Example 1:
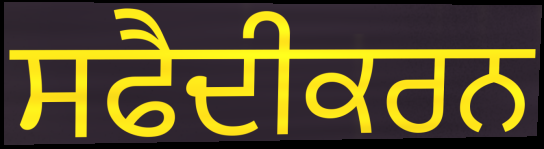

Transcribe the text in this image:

ਸਫੈਦੀਕਰਨ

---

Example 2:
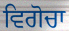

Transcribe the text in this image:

ਵਿਗੋਚਾ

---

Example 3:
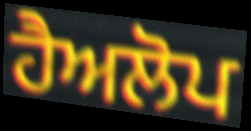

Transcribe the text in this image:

ਹੈਅਲੋਪ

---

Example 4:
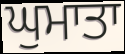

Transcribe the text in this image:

ਘੁਮਾਤਾ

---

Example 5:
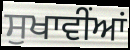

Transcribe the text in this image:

ਸੁਖਾਵੀਂਆਂ